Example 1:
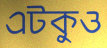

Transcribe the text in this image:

এটকুও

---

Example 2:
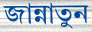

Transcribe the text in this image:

জান্নাতুন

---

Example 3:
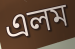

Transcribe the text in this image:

এলম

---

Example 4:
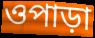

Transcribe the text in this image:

ওপাড়া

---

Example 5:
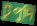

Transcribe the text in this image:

টুপুদি